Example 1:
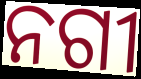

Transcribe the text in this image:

ନଗୀ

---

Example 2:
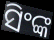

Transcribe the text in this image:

ସିଂଙ୍କ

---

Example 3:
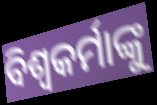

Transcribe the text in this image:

ବିଶ୍ଵକର୍ମାଙ୍କୁ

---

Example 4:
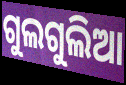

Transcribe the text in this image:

ଗୁଲଗୁଲିଆ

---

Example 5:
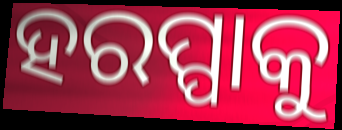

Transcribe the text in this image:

ହରପ୍ପାକୁ